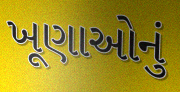
ખૂણાઓનું